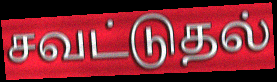
சவட்டுதல்